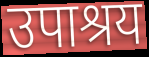
उपाश्रय